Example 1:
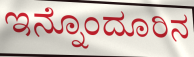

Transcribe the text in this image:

ಇನ್ನೊಂದೂರಿನ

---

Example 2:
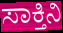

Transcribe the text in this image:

ಸಾಕ್ತಿನಿ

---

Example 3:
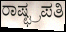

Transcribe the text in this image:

ರಾಷ್ಟ್ರಪತಿ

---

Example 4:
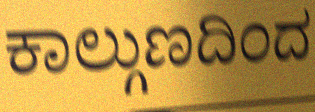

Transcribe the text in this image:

ಕಾಲ್ಗುಣದಿಂದ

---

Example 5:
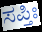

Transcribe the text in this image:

ಸಪ್ತಿಃ